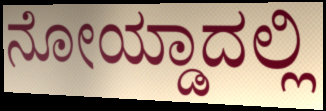
ನೋಯ್ಡಾದಲ್ಲಿ